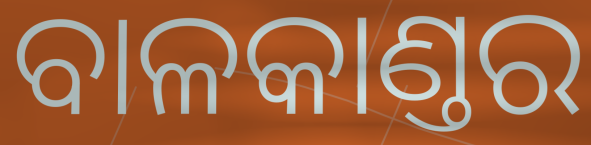
ବାଳକାଣ୍ତର